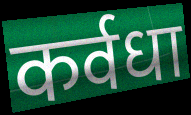
कर्वधा